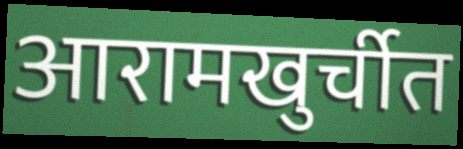
आरामखुर्चीत